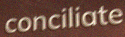
conciliate